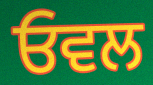
ਓਵਲ